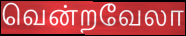
வென்றவேலா